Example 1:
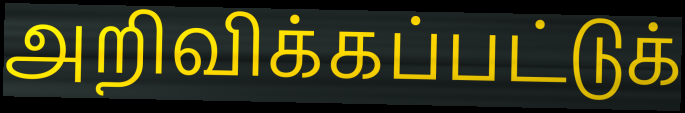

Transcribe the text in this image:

அறிவிக்கப்பட்டுக்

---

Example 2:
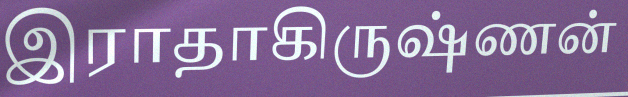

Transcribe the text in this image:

இராதாகிருஷ்ணன்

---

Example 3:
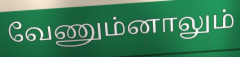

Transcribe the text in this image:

வேணும்னாலும்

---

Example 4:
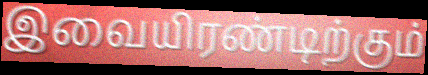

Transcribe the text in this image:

இவையிரண்டிற்கும்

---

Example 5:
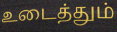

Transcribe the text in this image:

உடைத்தும்